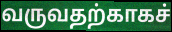
வருவதற்காகச்